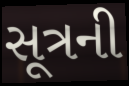
સૂત્રની